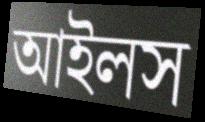
আইলস